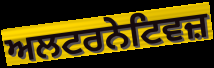
ਅਲਟਰਨੇਟਿਵਜ਼